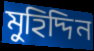
মুহিদ্দিন